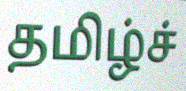
தமிழ்ச்